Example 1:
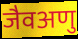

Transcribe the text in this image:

जैवअणु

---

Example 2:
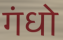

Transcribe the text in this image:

गंधो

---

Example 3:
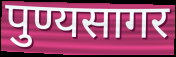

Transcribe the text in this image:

पुण्यसागर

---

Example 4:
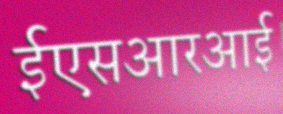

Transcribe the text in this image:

ईएसआरआई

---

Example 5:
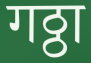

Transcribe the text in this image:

गठ्ठा